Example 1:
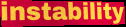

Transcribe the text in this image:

instability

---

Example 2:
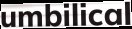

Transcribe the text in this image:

umbilical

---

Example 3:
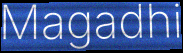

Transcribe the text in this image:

Magadhi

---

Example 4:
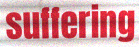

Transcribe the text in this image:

suffering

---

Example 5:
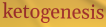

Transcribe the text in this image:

ketogenesis